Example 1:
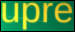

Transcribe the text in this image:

upre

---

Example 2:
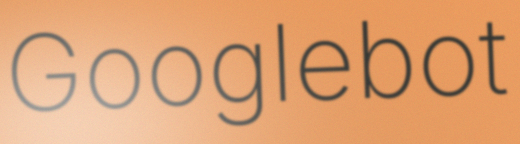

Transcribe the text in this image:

Googlebot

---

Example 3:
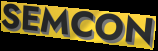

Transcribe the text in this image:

SEMCON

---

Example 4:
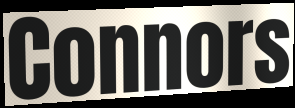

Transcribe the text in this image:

Connors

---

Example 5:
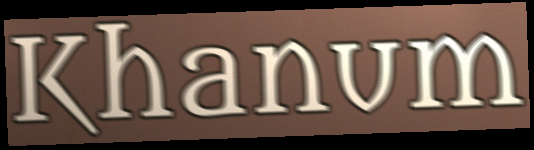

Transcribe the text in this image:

Khanum